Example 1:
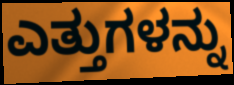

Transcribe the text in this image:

ಎತ್ತುಗಳನ್ನು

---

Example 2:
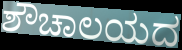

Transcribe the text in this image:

ಶೌಚಾಲಯದ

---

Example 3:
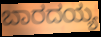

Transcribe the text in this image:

ಬಾರದಯ್ಯ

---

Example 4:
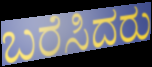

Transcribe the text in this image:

ಬರೆಸಿದರು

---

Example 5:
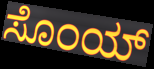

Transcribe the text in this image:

ಸೊಂಯ್